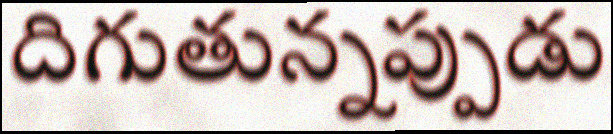
దిగుతున్నప్పుడు